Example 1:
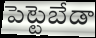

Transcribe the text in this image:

పెట్టెబేడా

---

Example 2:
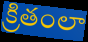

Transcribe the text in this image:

క్రితంలా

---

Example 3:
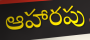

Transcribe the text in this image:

ఆహారపు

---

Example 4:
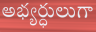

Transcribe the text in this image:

అభ్యర్ధులుగా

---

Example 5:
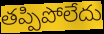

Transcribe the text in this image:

తప్పిపోలేదు